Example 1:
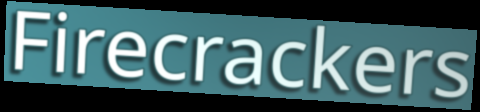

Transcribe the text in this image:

Firecrackers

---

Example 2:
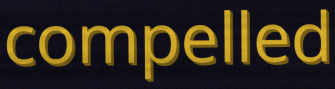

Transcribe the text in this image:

compelled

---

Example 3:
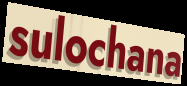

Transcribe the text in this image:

sulochana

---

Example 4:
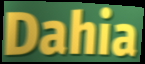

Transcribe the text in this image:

Dahia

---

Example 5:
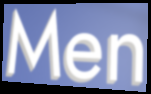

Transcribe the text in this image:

Men